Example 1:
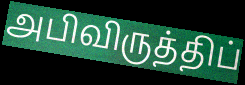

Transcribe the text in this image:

அபிவிருத்திப்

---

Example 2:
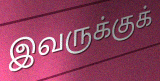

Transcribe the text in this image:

இவருக்குக்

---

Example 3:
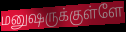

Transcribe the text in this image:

மனுஷருக்குள்ளே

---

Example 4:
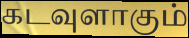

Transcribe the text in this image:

கடவுளாகும்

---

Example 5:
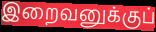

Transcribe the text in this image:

இறைவனுக்குப்